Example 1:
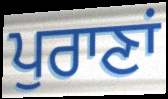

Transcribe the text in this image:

ਪੁਰਾਣਾਂ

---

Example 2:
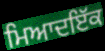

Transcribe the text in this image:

ਮਿਆਦਇੱਕ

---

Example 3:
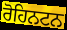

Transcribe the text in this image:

ਰੋਹਿਨਟਨ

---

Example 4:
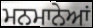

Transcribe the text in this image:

ਮਨਮਾਨੇਆਂ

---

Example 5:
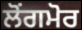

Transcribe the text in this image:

ਲੋਂਗਮੋਰ